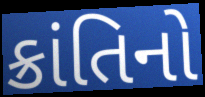
ક્રાંતિનો